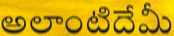
అలాంటిదేమీ